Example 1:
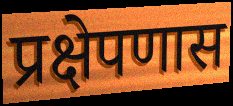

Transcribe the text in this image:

प्रक्षेपणास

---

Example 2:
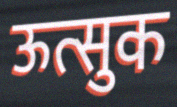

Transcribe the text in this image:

ऊत्सुक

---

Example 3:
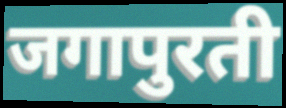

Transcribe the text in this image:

जगापुरती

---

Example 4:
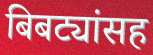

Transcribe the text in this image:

बिबट्यांसह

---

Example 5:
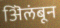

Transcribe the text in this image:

ऄिलंबून